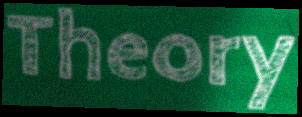
Theory